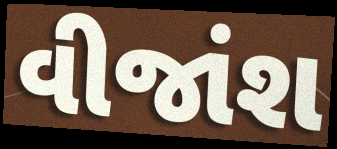
વીજાંશ